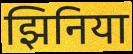
झिनिया